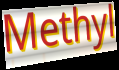
Methyl